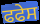
ਫਫੇਸ